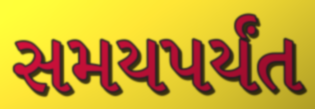
સમયપર્યંત